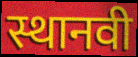
स्थानवी